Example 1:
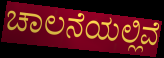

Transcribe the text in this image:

ಚಾಲನೆಯಲ್ಲಿವೆ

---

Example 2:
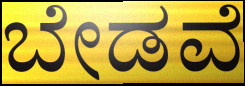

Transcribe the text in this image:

ಬೇಡವೆ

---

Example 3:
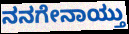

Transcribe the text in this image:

ನನಗೇನಾಯ್ತು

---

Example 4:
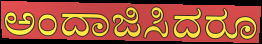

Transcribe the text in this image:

ಅಂದಾಜಿಸಿದರೂ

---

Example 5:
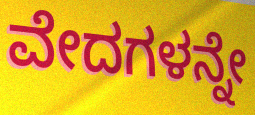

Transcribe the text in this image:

ವೇದಗಳನ್ನೇ